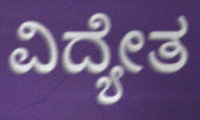
ವಿದ್ಯೇತ